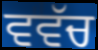
ਵਵੱਚ